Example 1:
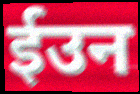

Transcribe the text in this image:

ईउन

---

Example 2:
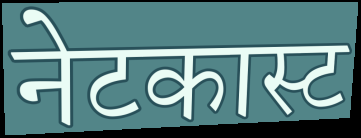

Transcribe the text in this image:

नेटकास्ट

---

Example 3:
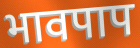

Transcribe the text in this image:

भावपाप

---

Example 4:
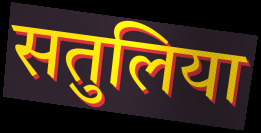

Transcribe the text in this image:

सतुलिया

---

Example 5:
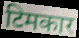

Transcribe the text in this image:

टिमकार